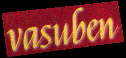
vasuben